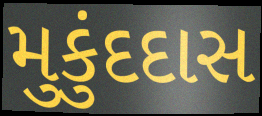
મુકુંદદાસ